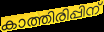
കാത്തിരിപ്പിന്